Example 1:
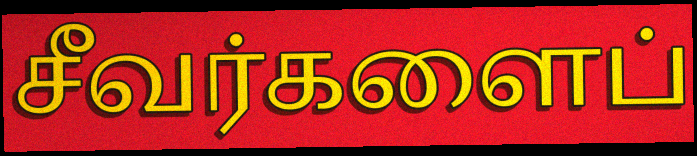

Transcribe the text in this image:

சீவர்களைப்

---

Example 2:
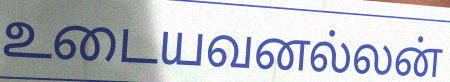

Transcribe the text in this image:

உடையவனல்லன்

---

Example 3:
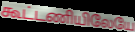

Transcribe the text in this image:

கூட்டணியிலேயே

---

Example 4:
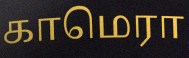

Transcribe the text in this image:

காமெரா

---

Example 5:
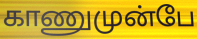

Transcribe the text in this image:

காணுமுன்பே